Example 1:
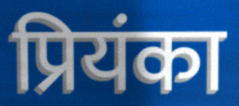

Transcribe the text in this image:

प्रियंका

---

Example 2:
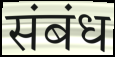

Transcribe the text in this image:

संबंध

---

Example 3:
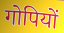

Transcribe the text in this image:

गोपियों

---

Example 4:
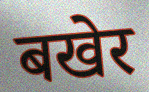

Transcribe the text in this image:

बखेर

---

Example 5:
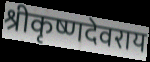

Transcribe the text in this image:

श्रीकृष्णदेवराय